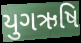
યુગઋષિ